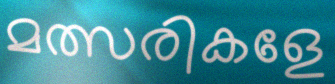
മത്സരികളേ